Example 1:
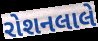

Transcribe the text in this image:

રોશનલાલે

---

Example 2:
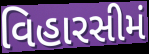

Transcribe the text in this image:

વિહારસીમં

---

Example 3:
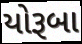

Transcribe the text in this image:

યોરૂબા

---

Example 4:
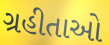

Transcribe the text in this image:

ગ્રહીતાઓ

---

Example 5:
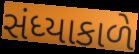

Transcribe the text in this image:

સંધ્યાકાળે